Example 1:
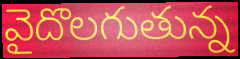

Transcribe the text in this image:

వైదొలగుతున్న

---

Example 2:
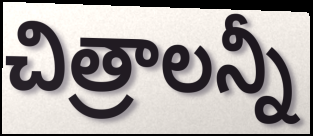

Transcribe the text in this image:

చిత్రాలన్నీ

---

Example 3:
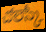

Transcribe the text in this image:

చోలెస్కీ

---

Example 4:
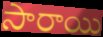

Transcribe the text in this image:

సారాయి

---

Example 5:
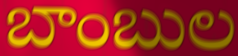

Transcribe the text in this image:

బాంబుల